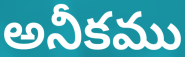
అనీకము